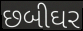
છબીઘર